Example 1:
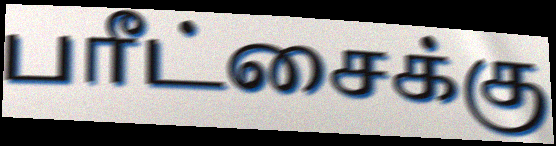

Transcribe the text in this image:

பரீட்சைக்கு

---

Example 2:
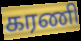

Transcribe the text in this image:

கரணி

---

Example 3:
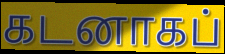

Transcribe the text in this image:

கடனாகப்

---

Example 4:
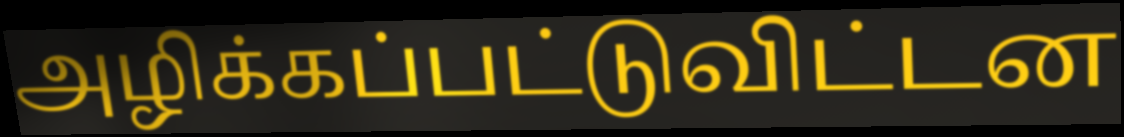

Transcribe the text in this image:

அழிக்கப்பட்டுவிட்டன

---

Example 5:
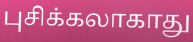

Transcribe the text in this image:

புசிக்கலாகாது